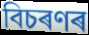
বিচৰণৰ